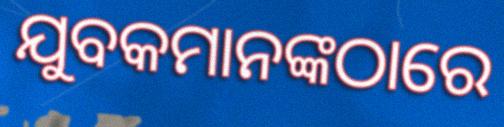
ଯୁବକମାନଙ୍କଠାରେ